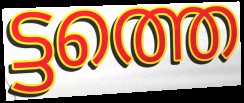
ട്ടത്തെ